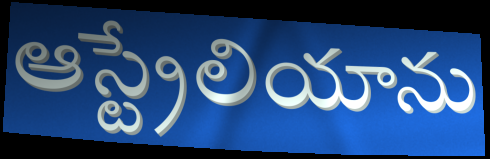
ఆస్ట్రేలియాను